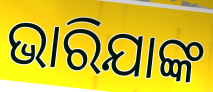
ଭାରିଯାଙ୍କ